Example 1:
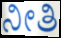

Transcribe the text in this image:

ನೀತಿ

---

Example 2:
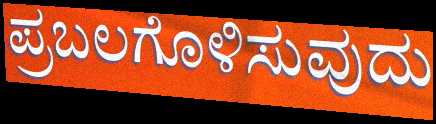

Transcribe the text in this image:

ಪ್ರಬಲಗೊಳಿಸುವುದು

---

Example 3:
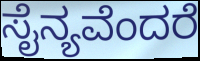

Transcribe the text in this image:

ಸೈನ್ಯವೆಂದರೆ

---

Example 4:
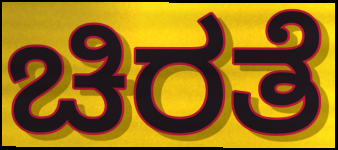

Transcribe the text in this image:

ಚಿರತೆ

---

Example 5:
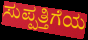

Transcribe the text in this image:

ಸುಪ್ಪತ್ತಿಗೆಯ